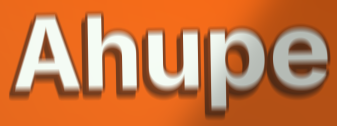
Ahupe